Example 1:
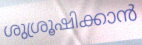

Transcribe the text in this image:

ശുശ്രൂഷിക്കാൻ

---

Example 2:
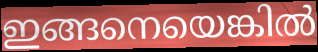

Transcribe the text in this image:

ഇങ്ങനെയെങ്കിൽ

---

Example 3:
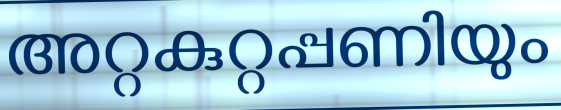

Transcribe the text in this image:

അറ്റകുറ്റപ്പണിയും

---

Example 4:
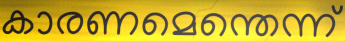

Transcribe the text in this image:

കാരണമെന്തെന്ന്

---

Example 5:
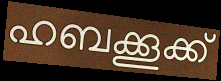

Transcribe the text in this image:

ഹബക്കൂക്ക്